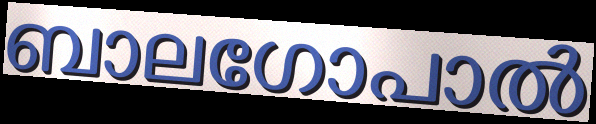
ബാലഗോപാൽ